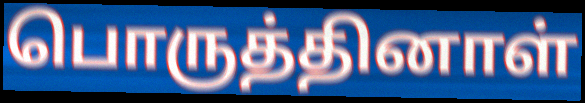
பொருத்தினாள்